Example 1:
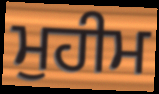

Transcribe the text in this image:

ਮੁਹੀਮ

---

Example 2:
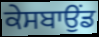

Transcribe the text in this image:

ਕੇਸਬਾਉਂਡ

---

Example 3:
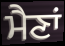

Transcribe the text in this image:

ਮੈਣਾਂ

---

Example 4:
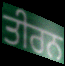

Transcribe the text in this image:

ਤੀਰਨ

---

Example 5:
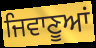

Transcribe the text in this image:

ਜਿਵਾਣੂਆਂ